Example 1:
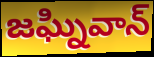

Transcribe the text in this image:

జఘ్నివాన్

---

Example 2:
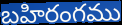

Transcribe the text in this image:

బహిరంగము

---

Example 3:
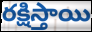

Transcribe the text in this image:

రక్షిస్తాయి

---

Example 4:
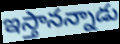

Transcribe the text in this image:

ఇస్తానన్నాడు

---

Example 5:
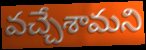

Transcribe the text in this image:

వచ్చేశామని